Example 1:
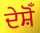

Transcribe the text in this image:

ਦੇਸ਼ੋਁ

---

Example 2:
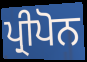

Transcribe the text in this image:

ਪ੍ਰੀਪੋਨ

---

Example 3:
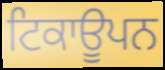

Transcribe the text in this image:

ਟਿਕਾਊਪਨ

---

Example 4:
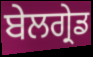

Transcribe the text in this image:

ਬੇਲਗ੍ਰੇਡ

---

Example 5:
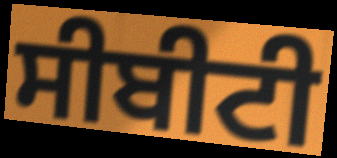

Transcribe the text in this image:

ਸੀਬੀਟੀ